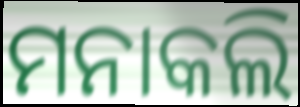
ମନାକଲି